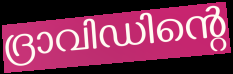
ദ്രാവിഡിന്റെ